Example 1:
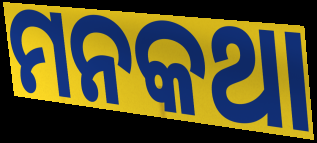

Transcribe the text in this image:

ମନକଥା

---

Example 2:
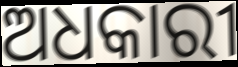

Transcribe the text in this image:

ଅଧକାରୀ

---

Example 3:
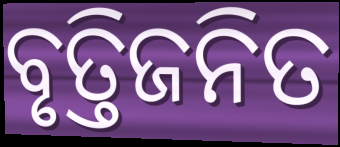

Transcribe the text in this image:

ବୃତ୍ତିଜନିତ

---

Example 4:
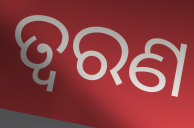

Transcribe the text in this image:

ତ୍ୱରଣ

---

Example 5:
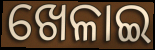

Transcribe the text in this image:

ଖେଳାଇ